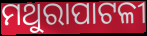
ମଥୁରାପାଟଳୀ